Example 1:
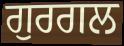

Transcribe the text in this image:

ਗੁਰਗਲ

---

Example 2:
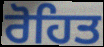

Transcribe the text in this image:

ਰੋਹਿਤ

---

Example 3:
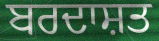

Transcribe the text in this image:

ਬਰਦਾਸ਼ਤ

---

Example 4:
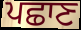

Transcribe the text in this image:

ਪਛਾਣ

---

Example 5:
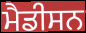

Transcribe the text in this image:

ਮੈਡੀਸਨ